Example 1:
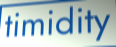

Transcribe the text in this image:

timidity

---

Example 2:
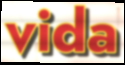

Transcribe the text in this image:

vida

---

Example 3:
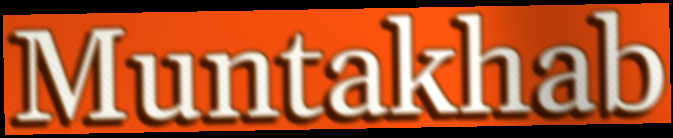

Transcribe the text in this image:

Muntakhab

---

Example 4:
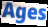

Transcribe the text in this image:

Ages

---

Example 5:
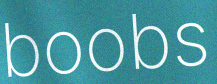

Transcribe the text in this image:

boobs